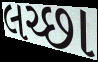
લચ્છા